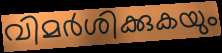
വിമർശിക്കുകയും